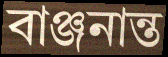
বাঞ্জনান্ত